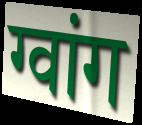
ग्वांग